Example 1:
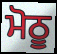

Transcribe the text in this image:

ਮੋਠੂ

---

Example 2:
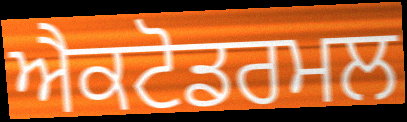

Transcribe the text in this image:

ਐਕਟੋਡਰਮਲ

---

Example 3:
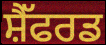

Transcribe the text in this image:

ਸ਼ੈੱਫਰਡ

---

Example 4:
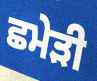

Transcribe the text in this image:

ਛਮੇੜੀ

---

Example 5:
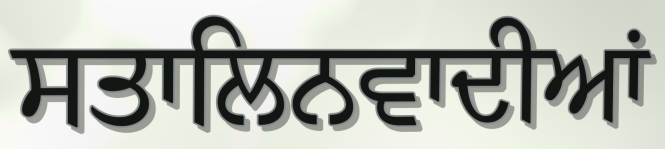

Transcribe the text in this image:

ਸਤਾਲਿਨਵਾਦੀਆਂ